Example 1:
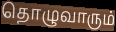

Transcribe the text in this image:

தொழுவாரும்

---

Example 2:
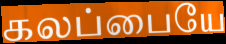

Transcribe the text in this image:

கலப்பையே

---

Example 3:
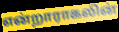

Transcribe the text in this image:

என்றாராகலின்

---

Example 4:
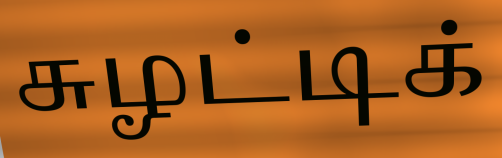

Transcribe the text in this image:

சுழட்டிக்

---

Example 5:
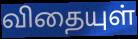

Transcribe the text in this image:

விதையுள்